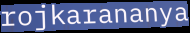
rojkarananya